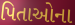
પિતાઓના